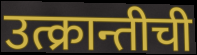
उत्क्रान्तीची